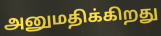
அனுமதிக்கிறது